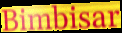
Bimbisar